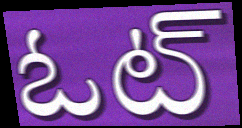
ఓట్